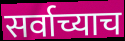
सर्वाच्याच